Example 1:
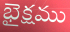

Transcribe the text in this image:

భైక్షము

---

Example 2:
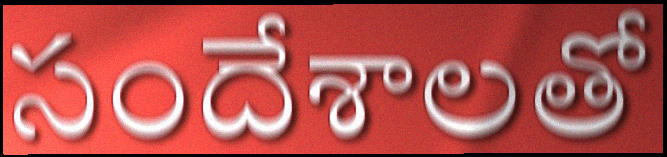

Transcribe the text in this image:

సందేశాలతో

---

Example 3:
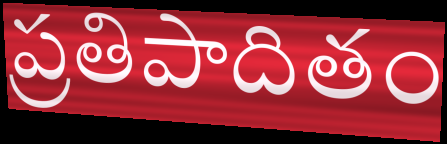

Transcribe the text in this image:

ప్రతిపాదితం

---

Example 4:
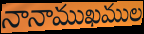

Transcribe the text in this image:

నానాముఖముల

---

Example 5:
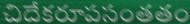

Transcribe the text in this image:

చిదేకరూపసంతతం